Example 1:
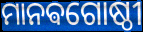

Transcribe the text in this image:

ମାନଵଗୋଷ୍ଠୀ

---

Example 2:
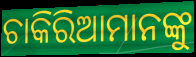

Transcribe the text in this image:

ଚାକିରିଆମାନଙ୍କୁ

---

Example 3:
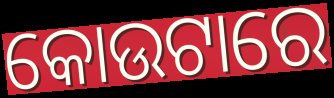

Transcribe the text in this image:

କୋଉଟାରେ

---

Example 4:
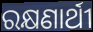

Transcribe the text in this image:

ରକ୍ଷଣାର୍ଥୀ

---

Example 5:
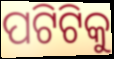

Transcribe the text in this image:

ପଟିଟିକୁ